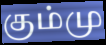
கும்மு